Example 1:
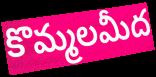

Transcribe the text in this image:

కొమ్మలమీద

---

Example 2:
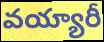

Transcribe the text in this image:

వయ్యారీ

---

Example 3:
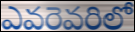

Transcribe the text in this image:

ఎవరెవరిలో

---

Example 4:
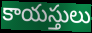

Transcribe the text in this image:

కాయస్తులు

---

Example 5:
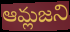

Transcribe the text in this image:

ఆమ్లజని